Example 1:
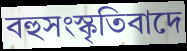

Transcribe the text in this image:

বহুসংস্কৃতিবাদে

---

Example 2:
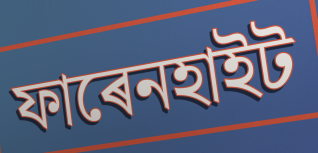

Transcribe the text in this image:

ফাৰেনহাইট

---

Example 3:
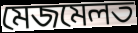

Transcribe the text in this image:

মেজমেলত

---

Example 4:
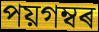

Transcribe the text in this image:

পয়গম্বৰ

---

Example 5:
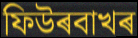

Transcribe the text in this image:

ফিউৰবাখৰ